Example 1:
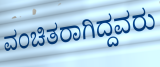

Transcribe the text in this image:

ವಂಚಿತರಾಗಿದ್ದವರು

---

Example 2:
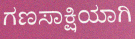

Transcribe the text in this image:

ಗಣಸಾಕ್ಷಿಯಾಗಿ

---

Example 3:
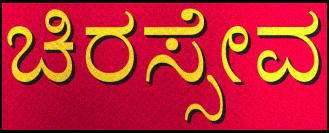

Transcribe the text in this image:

ಚಿರಸ್ಸೇವ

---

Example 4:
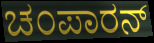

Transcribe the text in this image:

ಚಂಪಾರನ್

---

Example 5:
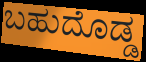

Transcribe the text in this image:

ಬಹುದೊಡ್ಡ